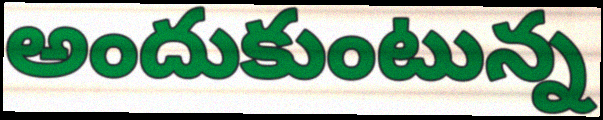
అందుకుంటున్న